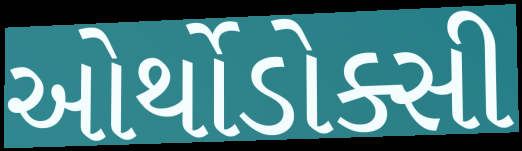
ઓર્થોડોક્સી